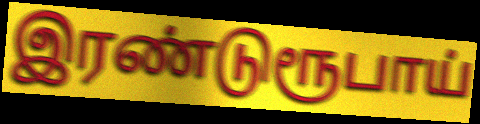
இரண்டுரூபாய்